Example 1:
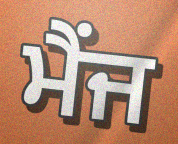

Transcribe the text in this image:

ਮੈਂਜ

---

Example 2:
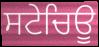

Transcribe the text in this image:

ਸਟੇਚਿਊ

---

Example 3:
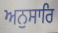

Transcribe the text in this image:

ਅਨੁਸਾਰਿ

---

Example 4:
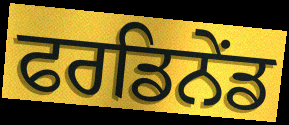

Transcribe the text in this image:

ਫਰਡਿਨੇਂਡ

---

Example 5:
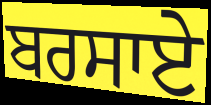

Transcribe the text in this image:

ਬਰਸਾਏ